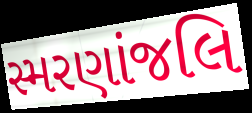
સ્મરણાંજલિ